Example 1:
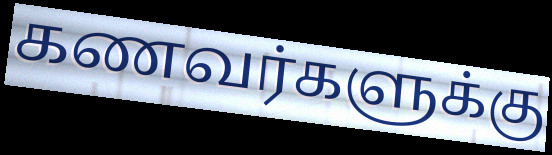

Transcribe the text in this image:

கணவர்களுக்கு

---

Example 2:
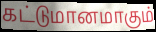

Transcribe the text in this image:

கட்டுமானமாகும்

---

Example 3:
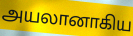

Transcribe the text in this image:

அயலானாகிய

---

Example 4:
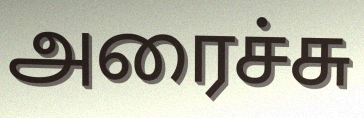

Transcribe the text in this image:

அரைச்சு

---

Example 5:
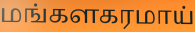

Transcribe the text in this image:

மங்களகரமாய்